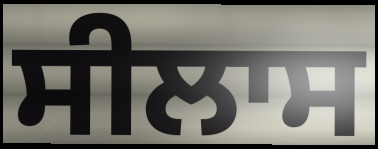
ਸੀਲਾਸ